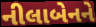
નીલાબેનને